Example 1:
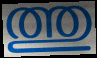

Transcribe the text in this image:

ത്തു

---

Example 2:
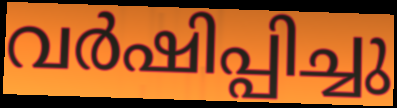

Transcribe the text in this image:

വർഷിപ്പിച്ചു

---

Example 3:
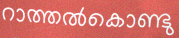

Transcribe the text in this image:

റാത്തൽകൊണ്ടു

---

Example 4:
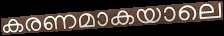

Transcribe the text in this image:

കരണമാകയാലെ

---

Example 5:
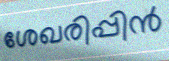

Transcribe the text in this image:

ശേഖരിപ്പിൻ